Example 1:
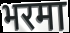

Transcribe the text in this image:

भरमा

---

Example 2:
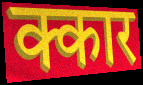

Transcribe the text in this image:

क्कार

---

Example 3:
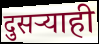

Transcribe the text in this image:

दुसर्‍याही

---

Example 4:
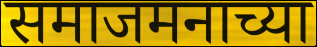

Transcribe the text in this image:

समाजमनाच्या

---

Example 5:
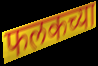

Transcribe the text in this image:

फलकच्या